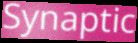
Synaptic